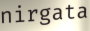
nirgata